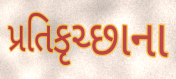
પ્રતિકૃચ્છાના